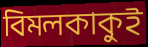
বিমলকাকুই